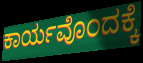
ಕಾರ್ಯವೊಂದಕ್ಕೆ